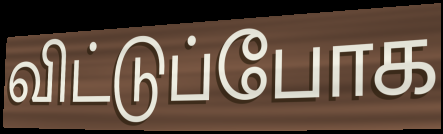
விட்டுப்போக